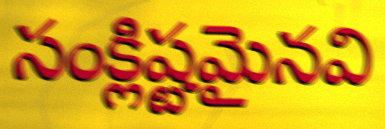
సంక్లిష్టమైనవి